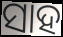
ସାହ